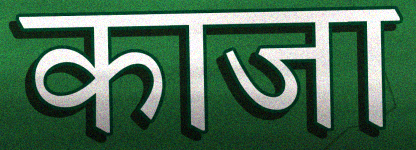
काजा